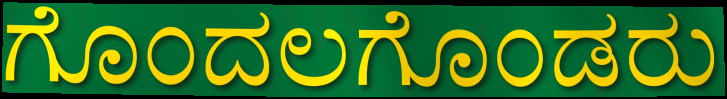
ಗೊಂದಲಗೊಂಡರು